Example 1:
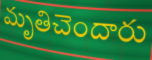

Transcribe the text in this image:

మృతిచెందారు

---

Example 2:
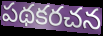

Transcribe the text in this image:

పథకరచన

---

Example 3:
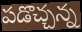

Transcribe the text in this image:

పడొచ్చన్న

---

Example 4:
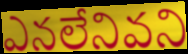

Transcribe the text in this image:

ఎనలేనివని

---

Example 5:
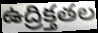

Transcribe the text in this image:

ఉద్రిక్తతల